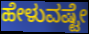
ಹೇಳುವಷ್ಟೇ